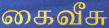
கைவீசு